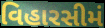
વિહારસીમં